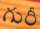
గురీ